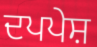
ਦਪਪੇਸ਼